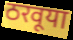
ठरवूया